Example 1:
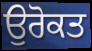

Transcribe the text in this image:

ਉਰੋਕਤ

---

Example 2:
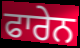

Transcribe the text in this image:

ਫਾਰੇਨ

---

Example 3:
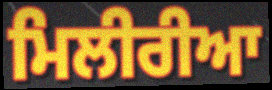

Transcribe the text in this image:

ਮਿਲੀਰੀਆ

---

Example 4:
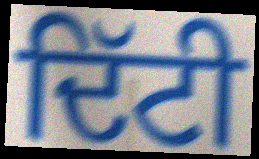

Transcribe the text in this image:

ਦਿੱਟੀ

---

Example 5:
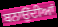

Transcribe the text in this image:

ਬਨਾਉਂਦੀਆਂ